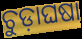
ଚୁଡ଼ାଘଷା